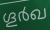
ഗൂർഖ